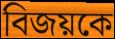
বিজয়কে